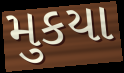
મુકયા